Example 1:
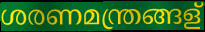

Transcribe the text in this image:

ശരണമന്ത്രങ്ങള്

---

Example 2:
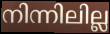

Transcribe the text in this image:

നിന്നിലില്ല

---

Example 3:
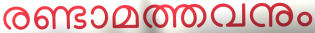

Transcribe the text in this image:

രണ്ടാമത്തവനും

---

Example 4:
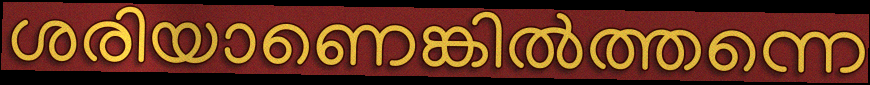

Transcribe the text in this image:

ശരിയാണെങ്കിൽത്തന്നെ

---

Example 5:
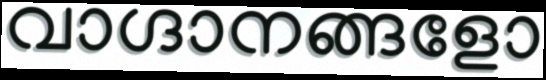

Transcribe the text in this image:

വാഗ്ദാനങ്ങളോ